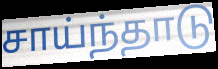
சாய்ந்தாடு